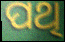
ପଥି